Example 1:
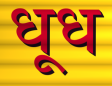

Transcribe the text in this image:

धूध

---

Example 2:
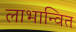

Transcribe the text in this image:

लाभान्वित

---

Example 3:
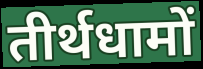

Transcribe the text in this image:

तीर्थधामों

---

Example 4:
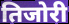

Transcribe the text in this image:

तिजोरी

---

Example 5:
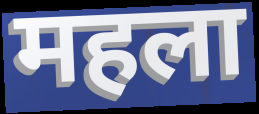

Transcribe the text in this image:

महला